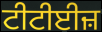
ਟੀਟੀਈਜ਼